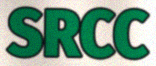
SRCC